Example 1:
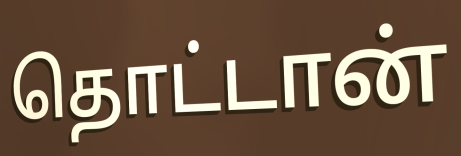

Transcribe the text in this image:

தொட்டான்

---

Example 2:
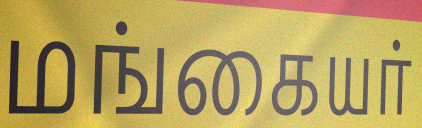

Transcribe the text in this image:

மங்கையர்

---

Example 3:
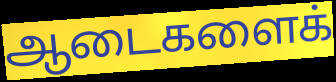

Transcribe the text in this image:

ஆடைகளைக்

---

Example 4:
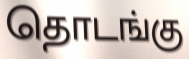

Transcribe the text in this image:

தொடங்கு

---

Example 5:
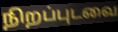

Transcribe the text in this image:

நிறப்புடவை